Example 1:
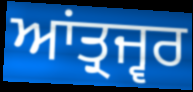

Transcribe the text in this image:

ਆਂਤ੍ਰਜ੍ਵਰ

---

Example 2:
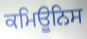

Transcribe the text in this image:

ਕਮਿਊਨਿਸ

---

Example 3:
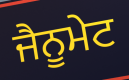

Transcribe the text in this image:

ਜੈਨੂਮੇਟ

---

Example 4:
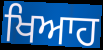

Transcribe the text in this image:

ਖਿਆਹ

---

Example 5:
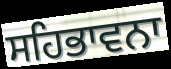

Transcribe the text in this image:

ਸਹਿਭਾਵਨਾ